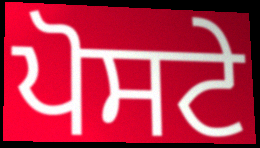
ਪੋਸਟੇ